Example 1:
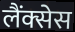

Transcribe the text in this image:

लैंक्‍सेस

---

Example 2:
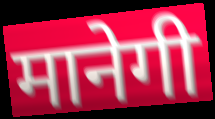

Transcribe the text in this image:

मानेगी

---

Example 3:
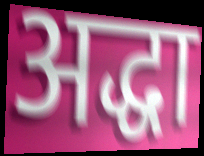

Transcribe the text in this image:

अद्धा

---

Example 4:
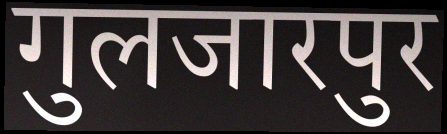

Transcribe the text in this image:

गुलजारपुर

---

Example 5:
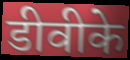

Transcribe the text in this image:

डीवीके